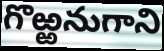
గొఱ్ఱనుగాని